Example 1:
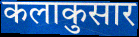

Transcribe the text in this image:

कलाकुसार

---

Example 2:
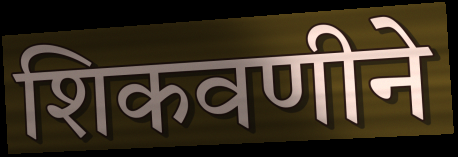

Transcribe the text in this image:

शिकवणीने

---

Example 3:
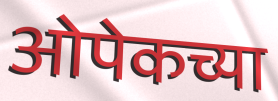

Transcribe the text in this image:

ओपेकच्या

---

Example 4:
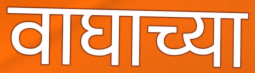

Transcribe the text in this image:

वाघाच्या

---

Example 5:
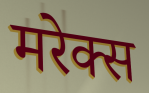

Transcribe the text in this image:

मरेक्स